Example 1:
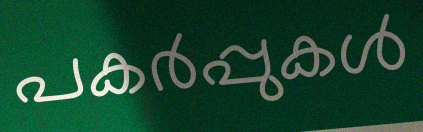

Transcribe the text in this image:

പകർപ്പുകൾ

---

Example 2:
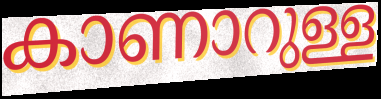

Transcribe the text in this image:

കാണാറുള്ള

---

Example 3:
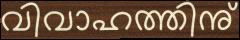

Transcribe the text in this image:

വിവാഹത്തിനു്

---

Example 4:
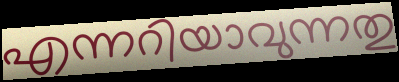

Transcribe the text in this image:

എന്നറിയാവുന്നതു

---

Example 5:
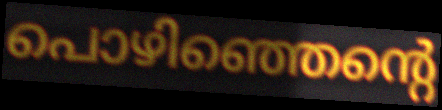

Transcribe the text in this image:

പൊഴിഞ്ഞെന്റെ